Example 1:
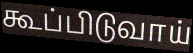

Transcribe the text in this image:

கூப்பிடுவாய்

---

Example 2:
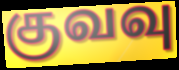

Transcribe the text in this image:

குவவு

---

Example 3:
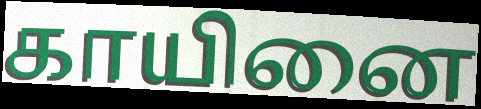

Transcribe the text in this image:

காயினை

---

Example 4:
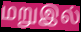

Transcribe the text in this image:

மறுஇல்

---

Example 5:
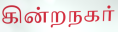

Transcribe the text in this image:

கின்றநகர்